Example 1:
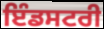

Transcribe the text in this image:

ਇੰਡਸਟਰੀ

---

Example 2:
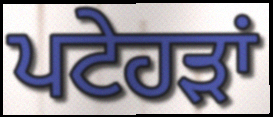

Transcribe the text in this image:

ਪਟੇਹੜਾਂ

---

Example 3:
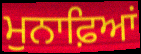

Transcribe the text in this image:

ਮੁਨਾਫ਼ਿਆਂ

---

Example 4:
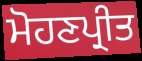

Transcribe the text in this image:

ਮੋਹਣਪ੍ਰੀਤ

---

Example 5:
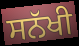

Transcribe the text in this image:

ਸਨੱਖੀ